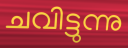
ചവിട്ടുന്നു